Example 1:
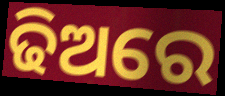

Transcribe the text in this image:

ଢିଅରେ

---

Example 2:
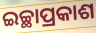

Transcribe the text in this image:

ଇଚ୍ଛାପ୍ରକାଶ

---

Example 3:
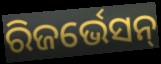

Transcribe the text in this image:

ରିଜର୍ଭେସନ୍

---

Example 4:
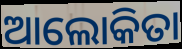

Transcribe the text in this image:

ଆଲୋକିତା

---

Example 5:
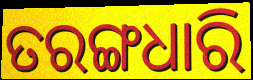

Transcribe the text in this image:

ତରଙ୍ଗଧାରି